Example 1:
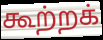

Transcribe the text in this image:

கூற்றக்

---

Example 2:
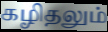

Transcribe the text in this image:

கழிதலும்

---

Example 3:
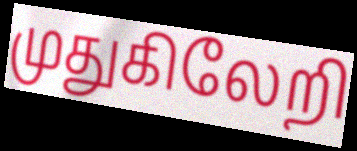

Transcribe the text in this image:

முதுகிலேறி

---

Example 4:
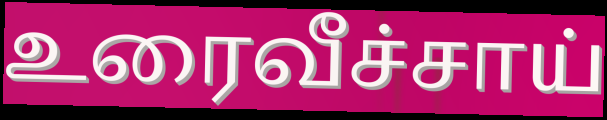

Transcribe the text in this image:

உரைவீச்சாய்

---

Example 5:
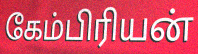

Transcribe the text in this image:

கேம்பிரியன்